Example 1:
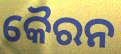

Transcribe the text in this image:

କୈରନ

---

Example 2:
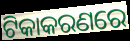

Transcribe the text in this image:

ଟିକାକରଣରେ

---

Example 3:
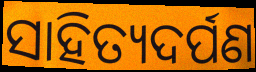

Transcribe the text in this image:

ସାହିତ୍ୟଦର୍ପଣ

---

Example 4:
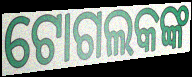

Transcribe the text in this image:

ଟୋଗଲକଙ୍କ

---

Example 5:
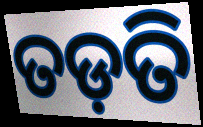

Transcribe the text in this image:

ତଡ଼ତି